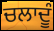
ਚਲਾਦੂੰ